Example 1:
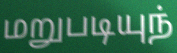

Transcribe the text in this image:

மறுபடியுந்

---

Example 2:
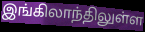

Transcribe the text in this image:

இங்கிலாந்திலுள்ள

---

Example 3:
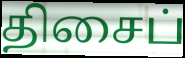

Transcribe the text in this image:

திசைப்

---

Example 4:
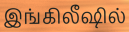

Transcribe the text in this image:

இங்கிலீஷில்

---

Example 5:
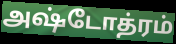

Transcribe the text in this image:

அஷ்டோத்ரம்